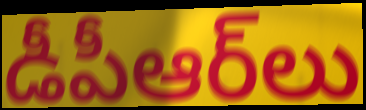
డీపీఆర్‌లు